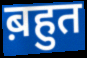
ब़हुत